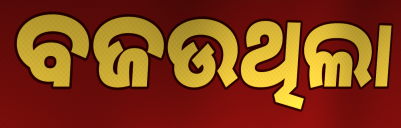
ବଜଉଥିଲା